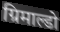
ग्रिमाल्डो